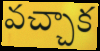
వచ్చాక